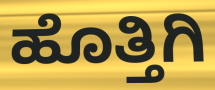
ಹೊತ್ತಿಗಿ